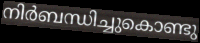
നിർബന്ധിച്ചുകൊണ്ടു